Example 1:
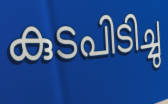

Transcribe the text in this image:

കുടപിടിച്ചു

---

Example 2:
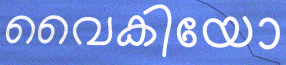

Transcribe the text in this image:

വൈകിയോ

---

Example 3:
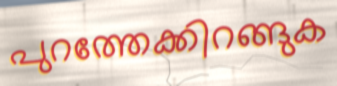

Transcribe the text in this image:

പുറത്തേക്കിറങ്ങുക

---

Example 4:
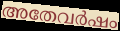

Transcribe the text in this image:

അതേവർഷം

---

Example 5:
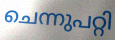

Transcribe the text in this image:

ചെന്നുപറ്റി